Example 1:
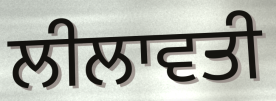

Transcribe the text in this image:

ਲੀਲਾਵਤੀ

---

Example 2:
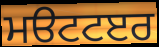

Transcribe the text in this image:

ਮੳਟਟੲਰ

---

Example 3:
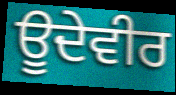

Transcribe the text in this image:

ਊਦੇਵੀਰ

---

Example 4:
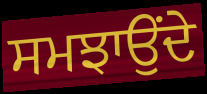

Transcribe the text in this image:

ਸਮਝਾਉੰਦੇ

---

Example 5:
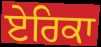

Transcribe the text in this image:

ਏਰਿਕਾ